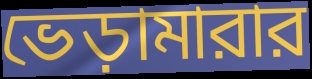
ভেড়ামারার